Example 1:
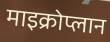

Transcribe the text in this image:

माइक्रोप्लान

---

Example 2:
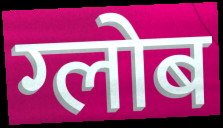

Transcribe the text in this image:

ग्‍लोब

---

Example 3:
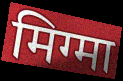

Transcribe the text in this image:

मिग्मा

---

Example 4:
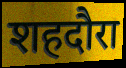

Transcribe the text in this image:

शहदौरा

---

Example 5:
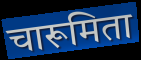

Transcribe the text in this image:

चारूमिता